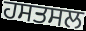
ਹਸਤਸਲ